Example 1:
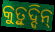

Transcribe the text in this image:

କୁତ୍ବୁଦ୍ଦିନ୍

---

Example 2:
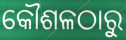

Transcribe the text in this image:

କୌଶଳଠାରୁ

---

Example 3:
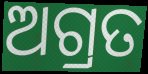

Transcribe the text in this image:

ଅଗ୍ରତ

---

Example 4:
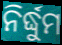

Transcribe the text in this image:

ନିର୍ଦ୍ଧୁମ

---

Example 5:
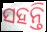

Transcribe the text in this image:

ସହନ୍ତି